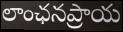
లాంఛనప్రాయ